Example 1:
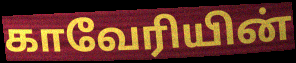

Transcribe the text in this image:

காவேரியின்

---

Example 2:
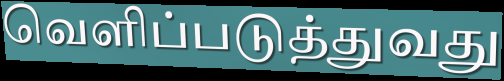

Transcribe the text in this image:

வெளிப்படுத்துவது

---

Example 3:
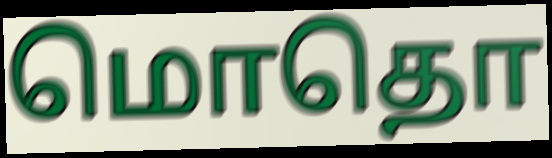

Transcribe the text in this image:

மொதொ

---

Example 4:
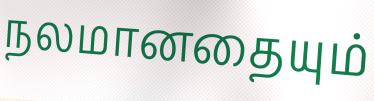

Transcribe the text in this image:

நலமானதையும்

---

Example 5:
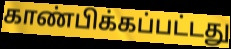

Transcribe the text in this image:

காண்பிக்கப்பட்டது